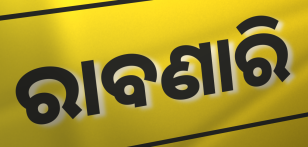
ରାବଣାରି